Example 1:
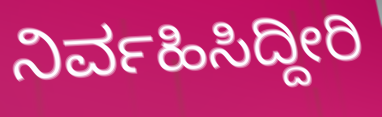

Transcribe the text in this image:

ನಿರ್ವಹಿಸಿದ್ದೀರಿ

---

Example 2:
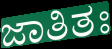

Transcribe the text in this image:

ಜಾತಿತಃ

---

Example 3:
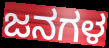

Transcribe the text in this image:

ಜನಗಳ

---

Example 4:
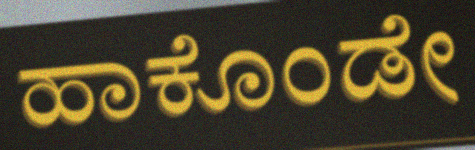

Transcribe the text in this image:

ಹಾಕೊಂಡೇ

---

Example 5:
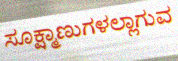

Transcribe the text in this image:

ಸೂಕ್ಷ್ಮಾಣುಗಳಲ್ಲಾಗುವ